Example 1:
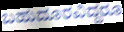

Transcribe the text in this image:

ಬಹುದೂರವಿದ್ದರೂ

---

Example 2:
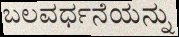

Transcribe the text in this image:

ಬಲವರ್ಧನೆಯನ್ನು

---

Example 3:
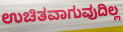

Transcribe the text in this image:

ಉಚಿತವಾಗುವುದಿಲ್ಲ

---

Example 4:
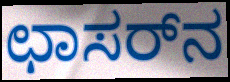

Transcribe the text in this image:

ಛಾಸರ್‌ನ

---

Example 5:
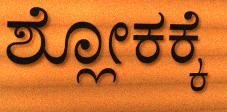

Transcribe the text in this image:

ಶ್ಲೋಕಕ್ಕೆ